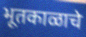
भूतकाळाचे